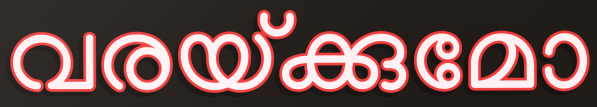
വരയ്‌ക്കുമോ